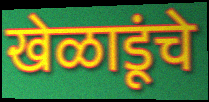
खेळाडूंचे